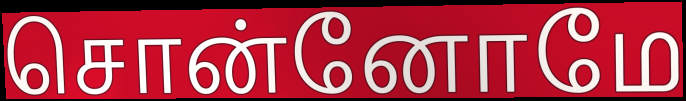
சொன்னோமே